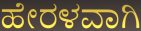
ಹೇರಳವಾಗಿ